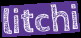
litchi